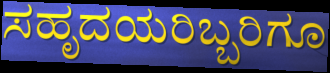
ಸಹೃದಯರಿಬ್ಬರಿಗೂ